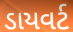
ડાયવર્ટ